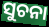
ସୁଚନା